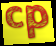
cp